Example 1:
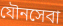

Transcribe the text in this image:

যৌনসেবা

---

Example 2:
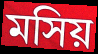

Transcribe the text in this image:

মসিয়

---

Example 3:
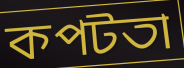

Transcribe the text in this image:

কপটতা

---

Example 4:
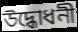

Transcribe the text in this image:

উদ্ধোধনী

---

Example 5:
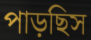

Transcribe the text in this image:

পাড়ছিস